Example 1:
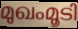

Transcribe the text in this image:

മുഖംമൂടി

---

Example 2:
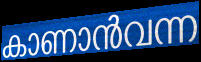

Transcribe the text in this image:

കാണാൻവന്ന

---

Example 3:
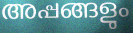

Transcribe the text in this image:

അപ്പങ്ങളും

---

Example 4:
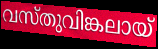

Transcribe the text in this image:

വസ്തുവിങ്കലായ്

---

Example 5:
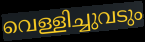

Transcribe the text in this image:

വെള്ളിച്ചുവടും